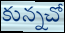
కున్నచో